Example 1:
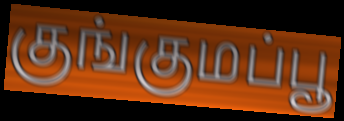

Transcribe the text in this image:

குங்குமப்பூ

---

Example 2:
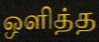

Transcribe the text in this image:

ஒளித்த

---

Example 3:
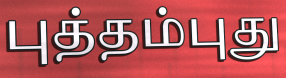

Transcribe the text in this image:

புத்தம்புது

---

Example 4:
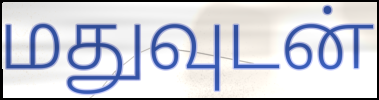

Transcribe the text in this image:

மதுவுடன்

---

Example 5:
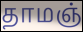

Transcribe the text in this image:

தாமஞ்